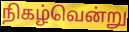
நிகழ்வென்று